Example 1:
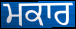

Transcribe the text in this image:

ਮਕਾਰ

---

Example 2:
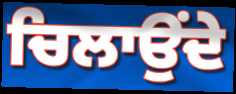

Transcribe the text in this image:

ਚਿਲਾਉਂਦੇ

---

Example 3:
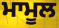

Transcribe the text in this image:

ਮਾਮੂਲ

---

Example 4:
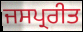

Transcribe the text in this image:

ਜਸਪ੍ਰਰੀਤ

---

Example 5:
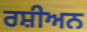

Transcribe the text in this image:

ਰਸ਼ੀਅਨ